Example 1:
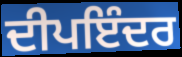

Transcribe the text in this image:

ਦੀਪਇੰਦਰ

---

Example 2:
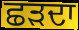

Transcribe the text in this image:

ਛੜਦਾ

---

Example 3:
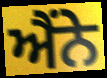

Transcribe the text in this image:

ਐਂਨੇ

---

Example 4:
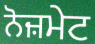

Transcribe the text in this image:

ਨੋਜ਼ਮੇਟ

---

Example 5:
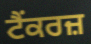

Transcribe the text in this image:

ਟੈਂਕਰਜ਼